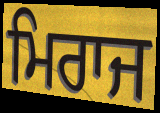
ਮਿਰਾਜ